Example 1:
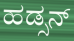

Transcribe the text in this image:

ಹಡ್ಸನ್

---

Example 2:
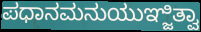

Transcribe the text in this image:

ಪಧಾನಮನುಯುಞ್ಜಿತ್ವಾ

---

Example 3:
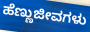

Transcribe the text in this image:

ಹೆಣ್ಣುಜೀವಗಳು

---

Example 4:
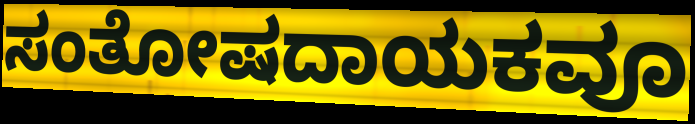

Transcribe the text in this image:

ಸಂತೋಷದಾಯಕವೂ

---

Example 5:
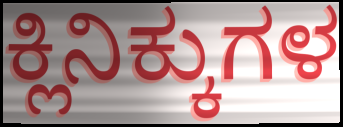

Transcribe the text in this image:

ಕ್ಲಿನಿಕ್ಕುಗಳ